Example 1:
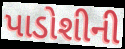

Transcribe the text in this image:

પાડોશીની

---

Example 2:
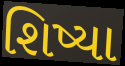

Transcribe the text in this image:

શિષ્યા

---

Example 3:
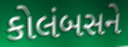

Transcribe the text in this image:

કોલંબસને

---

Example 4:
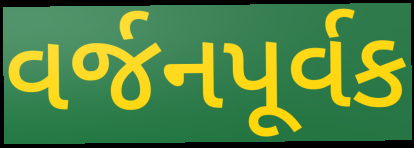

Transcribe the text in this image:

વર્જનપૂર્વક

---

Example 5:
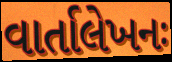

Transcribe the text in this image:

વાર્તાલેખનઃ